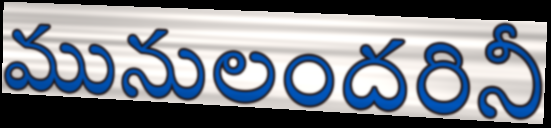
మునులందరినీ